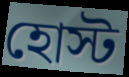
হোস্ট